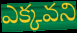
ఎక్కవని